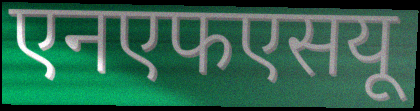
एनएफएसयू